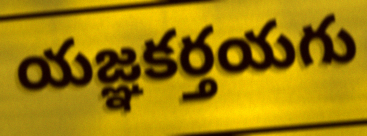
యజ్ఞకర్తయగు